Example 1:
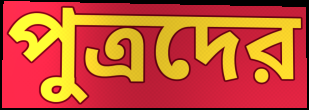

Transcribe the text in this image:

পুত্রদের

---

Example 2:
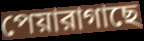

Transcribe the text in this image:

পেয়ারাগাছে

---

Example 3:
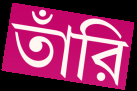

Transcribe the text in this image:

তাঁরি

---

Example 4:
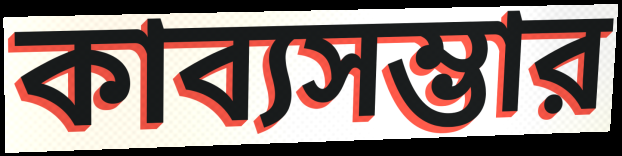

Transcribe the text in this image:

কাব্যসম্ভার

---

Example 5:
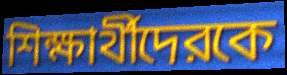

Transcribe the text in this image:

শিক্ষার্থীদেরকে